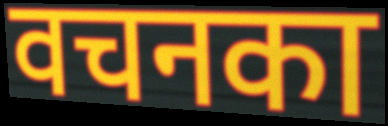
वचनका